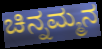
ಚಿನ್ನಮ್ಮನ